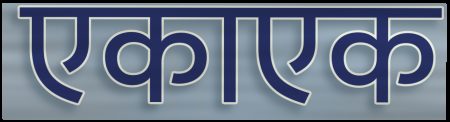
एकाएक